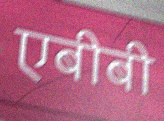
एबीबी